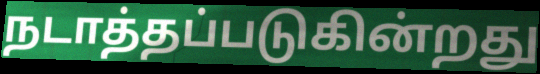
நடாத்தப்படுகின்றது